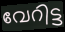
വേറിട്ട